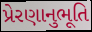
પ્રેરણાનુભૂતિ